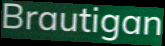
Brautigan